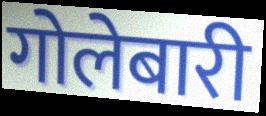
गोलेबारी